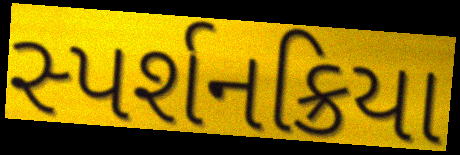
સ્પર્શનક્રિયા